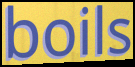
boils